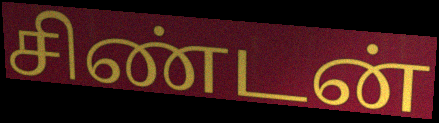
சிண்டன்